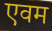
एवम